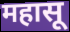
महासू